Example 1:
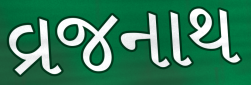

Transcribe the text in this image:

વ્રજનાથ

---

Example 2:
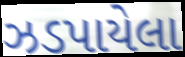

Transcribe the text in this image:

ઝડપાયેલા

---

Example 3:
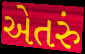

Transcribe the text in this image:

એતરું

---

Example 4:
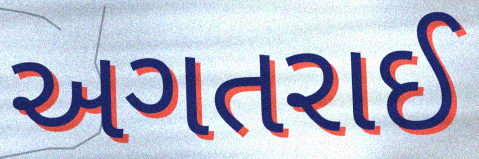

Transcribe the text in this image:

અગતરાઈ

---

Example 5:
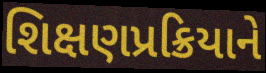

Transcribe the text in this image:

શિક્ષણપ્રક્રિયાને